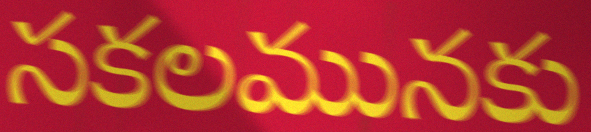
సకలమునకు